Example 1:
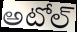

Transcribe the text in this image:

అటోల్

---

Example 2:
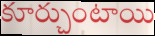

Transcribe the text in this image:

కూర్చుంటాయి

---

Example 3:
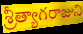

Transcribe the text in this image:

శ్రీత్యాగరాజుని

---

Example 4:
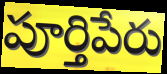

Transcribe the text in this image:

పూర్తిపేరు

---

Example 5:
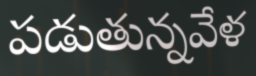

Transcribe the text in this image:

పడుతున్నవేళ